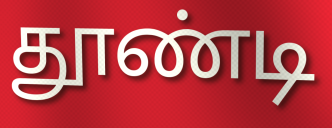
தூண்டி